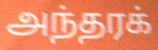
அந்தரக்